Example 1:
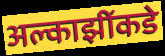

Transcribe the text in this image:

अल्काझींकडे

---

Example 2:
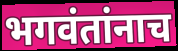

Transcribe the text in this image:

भगवंतांनाच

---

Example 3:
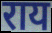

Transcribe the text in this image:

राय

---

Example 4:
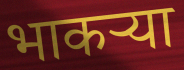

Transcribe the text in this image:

भाकर्‍या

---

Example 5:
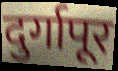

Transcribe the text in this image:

दुर्गापूर